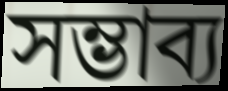
সম্ভাব্য